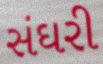
સંઘરી